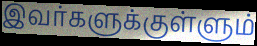
இவர்களுக்குள்ளும்